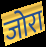
जोरा